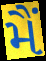
મૈં